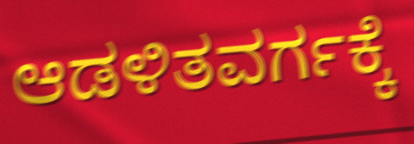
ಆಡಳಿತವರ್ಗಕ್ಕೆ